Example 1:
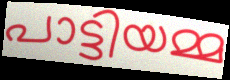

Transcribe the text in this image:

പാട്ടിയമ്മ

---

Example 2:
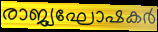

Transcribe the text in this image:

രാജ്യഘോഷകർ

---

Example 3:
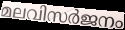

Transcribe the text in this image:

മലവിസർജനം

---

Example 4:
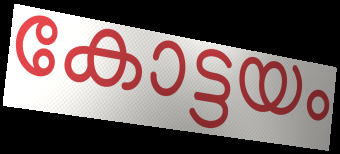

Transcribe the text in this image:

കോട്ടയം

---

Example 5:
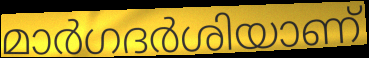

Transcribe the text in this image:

മാർഗദർശിയാണ്